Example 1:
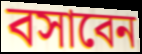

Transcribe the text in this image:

বসাবেন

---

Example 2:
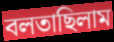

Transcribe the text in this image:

বলতাছিলাম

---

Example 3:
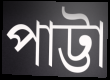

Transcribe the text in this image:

পাট্টা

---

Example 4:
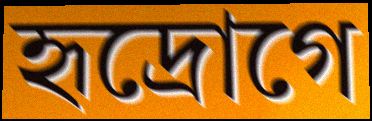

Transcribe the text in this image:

হৃদ্রোগে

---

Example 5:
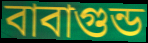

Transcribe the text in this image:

বাবাগুন্ড